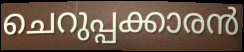
ചെറുപ്പക്കാരൻ